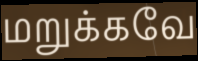
மறுக்கவே